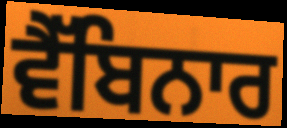
ਵੈੱਬਿਨਾਰ